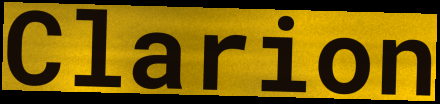
Clarion